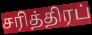
சரித்திரப்